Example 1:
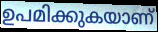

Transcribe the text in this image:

ഉപമിക്കുകയാണ്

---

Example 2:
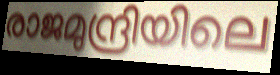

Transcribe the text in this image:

രാജമുന്ദ്രിയിലെ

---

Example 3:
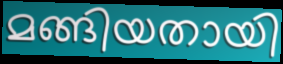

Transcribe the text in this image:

മങ്ങിയതായി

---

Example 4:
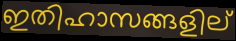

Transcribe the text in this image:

ഇതിഹാസങ്ങളില്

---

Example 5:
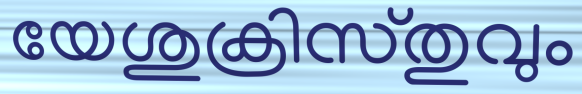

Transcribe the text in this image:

യേശുക്രിസ്തുവും